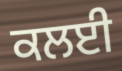
ਕਲਈ